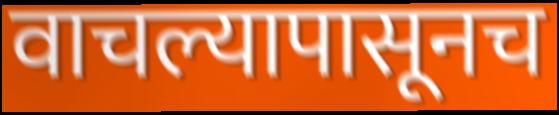
वाचल्यापासूनच